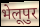
भेलूपुर